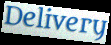
Delivery